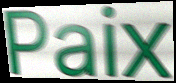
Paix